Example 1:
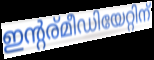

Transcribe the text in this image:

ഇന്റര്മീഡിയേറ്റിന്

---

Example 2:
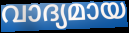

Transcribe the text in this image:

വാദ്യമായ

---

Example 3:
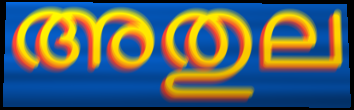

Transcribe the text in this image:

അതുല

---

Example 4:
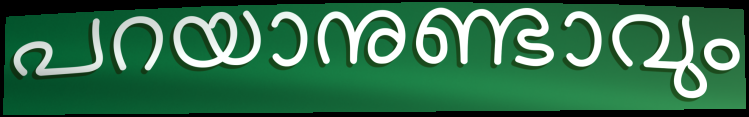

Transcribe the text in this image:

പറയാനുണ്ടാവും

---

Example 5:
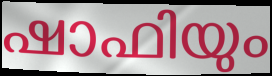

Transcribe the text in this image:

ഷാഫിയും